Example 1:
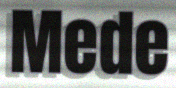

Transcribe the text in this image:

Mede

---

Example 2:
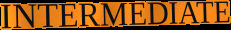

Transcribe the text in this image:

INTERMEDIATE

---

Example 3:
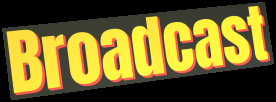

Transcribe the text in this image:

Broadcast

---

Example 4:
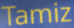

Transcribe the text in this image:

Tamiz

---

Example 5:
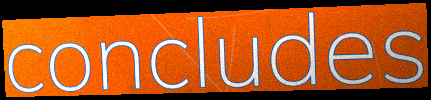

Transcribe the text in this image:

concludes